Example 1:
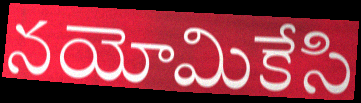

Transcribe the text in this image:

నయోమికేసి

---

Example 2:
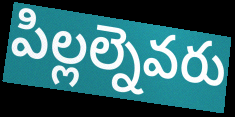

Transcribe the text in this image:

పిల్లల్నెవరు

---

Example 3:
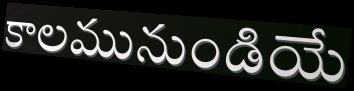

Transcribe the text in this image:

కాలమునుండియే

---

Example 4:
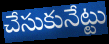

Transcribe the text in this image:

చేసుకునేట్టు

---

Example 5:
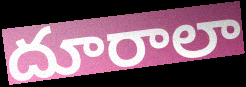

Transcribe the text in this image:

దూరాలా